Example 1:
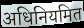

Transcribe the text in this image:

अधिनियमित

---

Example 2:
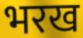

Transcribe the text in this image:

भरख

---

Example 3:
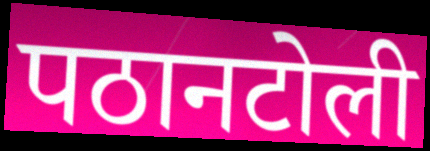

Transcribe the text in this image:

पठानटोली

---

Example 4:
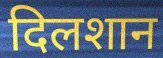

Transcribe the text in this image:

दिलशान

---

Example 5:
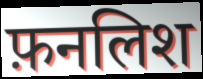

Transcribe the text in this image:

फ़नलिश